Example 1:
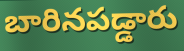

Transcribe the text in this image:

బారినపడ్డారు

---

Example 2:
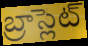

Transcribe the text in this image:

బ్రాస్లెట్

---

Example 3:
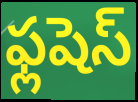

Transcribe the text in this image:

ఫ్లషెస్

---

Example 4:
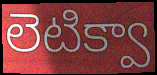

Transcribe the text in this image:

లెటిక్వా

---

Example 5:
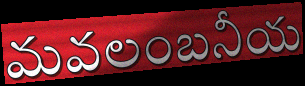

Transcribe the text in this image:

మవలంబనీయ